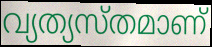
വ്യത്യസ്തമാണ്